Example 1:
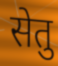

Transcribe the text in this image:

सेतु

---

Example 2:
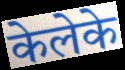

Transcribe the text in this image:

केलेके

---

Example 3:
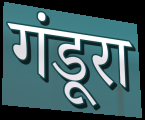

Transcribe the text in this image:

गंडूरा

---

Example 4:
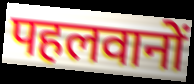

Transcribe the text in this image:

पहलवानों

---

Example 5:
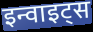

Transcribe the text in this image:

इन्वाइट्स